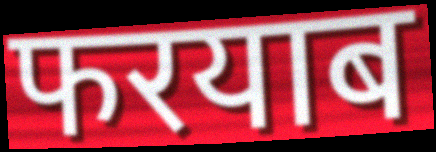
फरयाब